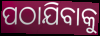
ପଠାଯିବାକୁ